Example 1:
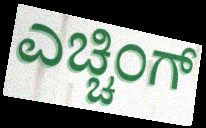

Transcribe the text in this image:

ಎಚ್ಚಿಂಗ್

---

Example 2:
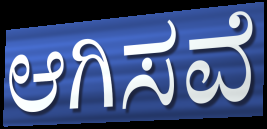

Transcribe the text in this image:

ಆಗಿಸವೆ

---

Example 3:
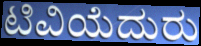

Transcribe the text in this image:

ಟಿವಿಯೆದುರು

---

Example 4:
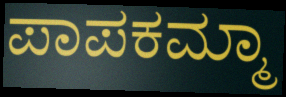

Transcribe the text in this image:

ಪಾಪಕಮ್ಮಾ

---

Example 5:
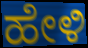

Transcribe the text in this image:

ಹೇಳಿ